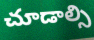
చూడాల్సి